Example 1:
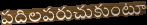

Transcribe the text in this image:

పదిలపరుచుకుంటూ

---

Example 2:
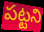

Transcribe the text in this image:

పట్టని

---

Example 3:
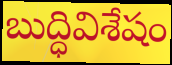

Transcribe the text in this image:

బుద్ధివిశేషం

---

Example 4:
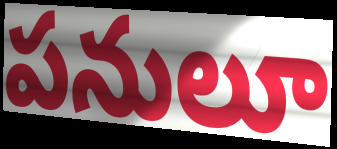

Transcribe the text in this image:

పనులూ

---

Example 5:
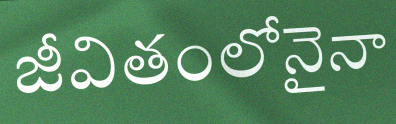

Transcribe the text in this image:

జీవితంలోనైనా